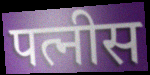
पत्‍नीस